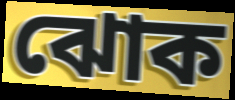
ঝোক